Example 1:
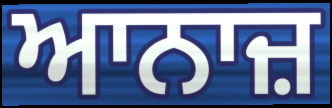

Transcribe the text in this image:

ਆਨਾਜ਼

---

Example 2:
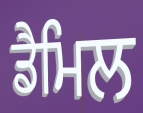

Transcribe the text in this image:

ਡੈਮਿਲ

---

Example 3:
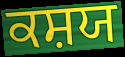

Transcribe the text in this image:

ਕਸ਼ਯ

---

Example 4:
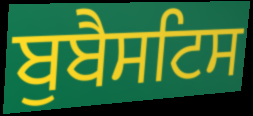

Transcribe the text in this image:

ਬੁਬੈਸਟਿਸ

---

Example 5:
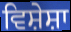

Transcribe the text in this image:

ਵਿਸ਼ੇਸ਼ਾ